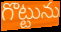
గొట్టును